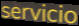
servicio